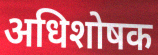
अधिशोषक